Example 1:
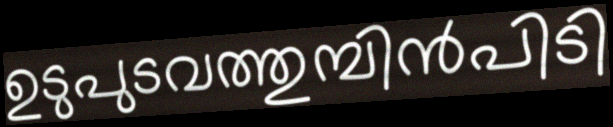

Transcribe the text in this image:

ഉടുപുടവത്തുമ്പിൻപിടി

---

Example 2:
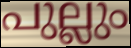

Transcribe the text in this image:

പുല്ലും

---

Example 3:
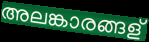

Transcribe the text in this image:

അലങ്കാരങ്ങള്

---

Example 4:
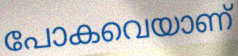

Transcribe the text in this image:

പോകവെയാണ്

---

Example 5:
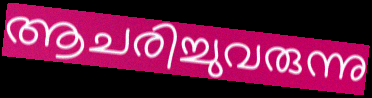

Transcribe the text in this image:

ആചരിച്ചുവരുന്നു